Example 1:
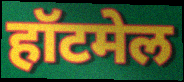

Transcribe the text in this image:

हॉटमेल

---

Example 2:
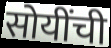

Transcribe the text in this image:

सोयींची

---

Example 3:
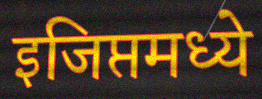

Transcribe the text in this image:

इजिप्तमध्ये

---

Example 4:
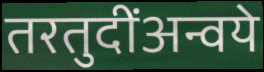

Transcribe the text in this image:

तरतुदींअन्वये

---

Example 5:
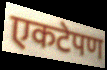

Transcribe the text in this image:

एकटेपण